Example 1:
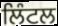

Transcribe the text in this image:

ਲਿੰਟਲ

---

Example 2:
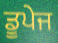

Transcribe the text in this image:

ਡੂਪੇਜ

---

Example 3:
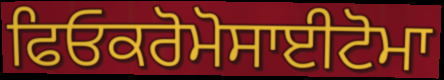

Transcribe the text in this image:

ਫਿਓਕਰੋਮੋਸਾਈਟੋਮਾ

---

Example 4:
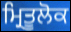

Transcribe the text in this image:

ਮ੍ਰਿਤੂਲੋਕ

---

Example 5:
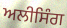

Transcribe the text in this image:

ਅਲੀਸਿੰਗ